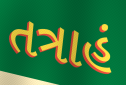
તત્રાહં